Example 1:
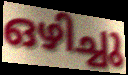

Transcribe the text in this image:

ഒഴിച്ചു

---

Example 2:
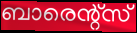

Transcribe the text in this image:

ബാരെന്റ്സ്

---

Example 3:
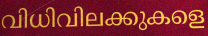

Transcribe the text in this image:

വിധിവിലക്കുകളെ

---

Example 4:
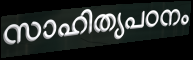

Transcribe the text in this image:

സാഹിത്യപഠനം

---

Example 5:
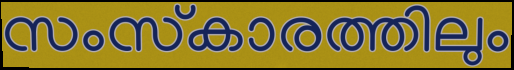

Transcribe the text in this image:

സംസ്‌കാരത്തിലും